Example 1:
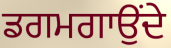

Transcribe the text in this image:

ਡਗਮਗਾਉਂਦੇ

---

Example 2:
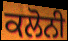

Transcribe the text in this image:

ਕਲੋਨੀ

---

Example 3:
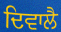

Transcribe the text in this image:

ਦਿਵਾਲੈ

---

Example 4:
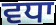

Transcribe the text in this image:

ਵਧਾ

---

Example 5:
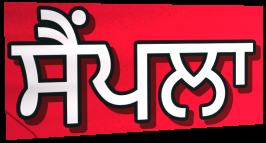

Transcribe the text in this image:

ਸੈਂਪਲਾ